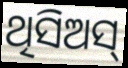
ଥିସିଅସ୍